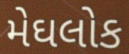
મેઘલોક